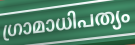
ഗ്രാമാധിപത്യം